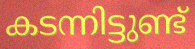
കടന്നിട്ടുണ്ട്